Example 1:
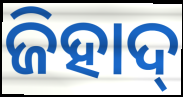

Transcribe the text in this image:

ଜିହାଦ୍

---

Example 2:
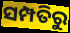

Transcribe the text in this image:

ସମ୍ପତିରୁ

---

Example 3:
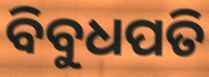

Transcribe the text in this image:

ବିବୁଧପତି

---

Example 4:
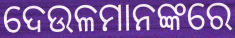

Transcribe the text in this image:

ଦେଉଳମାନଙ୍କରେ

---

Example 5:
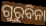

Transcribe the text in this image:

ଗୁରୁବିନା